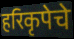
हरिकृपेचे